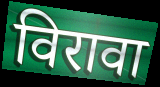
विरावा